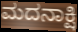
ಮದನಾಕ್ಷಿ